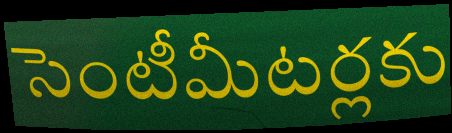
సెంటీమీటర్లకు